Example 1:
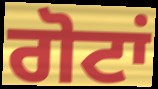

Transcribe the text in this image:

ਗੋਟਾਂ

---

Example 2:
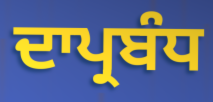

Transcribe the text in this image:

ਦਾਪ੍ਰਬੰਧ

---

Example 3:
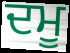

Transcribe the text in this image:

ਦਮੂ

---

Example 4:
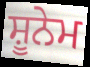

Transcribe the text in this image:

ਸ਼ੂਨੇਮ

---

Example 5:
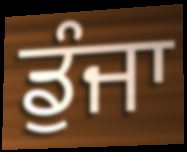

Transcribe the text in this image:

ਡੁੰਜਾ